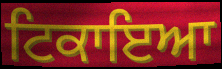
ਟਿਕਾਇਆ